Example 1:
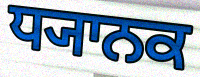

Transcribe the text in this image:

ਧ੍ਯਾਨਕ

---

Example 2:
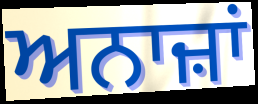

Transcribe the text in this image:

ਅਨਾਜ਼ਾਂ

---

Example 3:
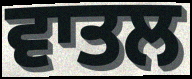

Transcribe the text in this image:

ਵਾਤਲ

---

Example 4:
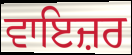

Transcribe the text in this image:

ਵਾਇਜ਼ਰ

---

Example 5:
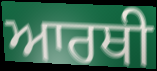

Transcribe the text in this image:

ਆਰਥੀ